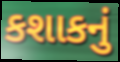
કશાકનું